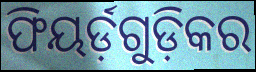
ଫିୟର୍ଡ଼ଗୁଡ଼ିକର